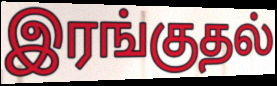
இரங்குதல்